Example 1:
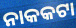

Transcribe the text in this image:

ନାକକଟା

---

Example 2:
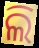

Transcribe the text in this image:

ଲି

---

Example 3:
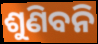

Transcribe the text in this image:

ଶୁଣିବନି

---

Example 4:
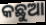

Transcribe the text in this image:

କଛୁଆ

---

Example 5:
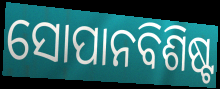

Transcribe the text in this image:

ସୋପାନବିଶିଷ୍ଟ